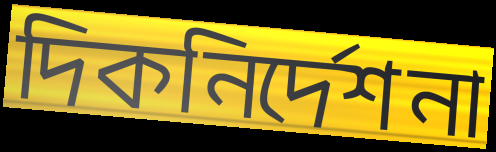
দিকনির্দেশনা